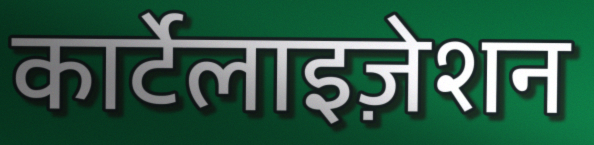
कार्टेलाइज़ेशन